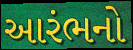
આરંભનો